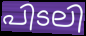
പിടലി